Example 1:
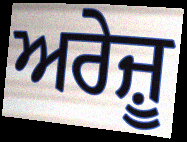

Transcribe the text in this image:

ਅਰੇਜ਼ੂ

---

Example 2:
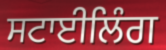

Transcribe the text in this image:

ਸਟਾਈਲਿੰਗ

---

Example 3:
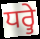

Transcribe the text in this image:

ਧਰ੍ਤੇ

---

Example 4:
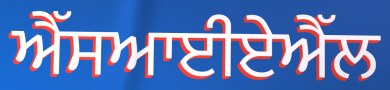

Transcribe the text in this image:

ਐੱਸਆਈਏਐੱਲ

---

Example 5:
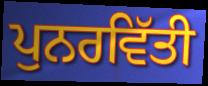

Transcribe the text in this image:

ਪੁਨਰਵਿੱਤੀ